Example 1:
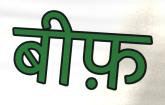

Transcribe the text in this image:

बीफ़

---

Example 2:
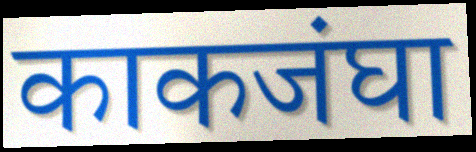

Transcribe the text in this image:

काकजंघा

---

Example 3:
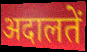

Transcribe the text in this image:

अदालतें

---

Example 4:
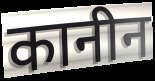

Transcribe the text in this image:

कानीन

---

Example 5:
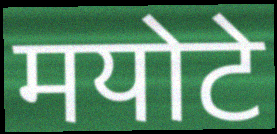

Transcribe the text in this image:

मयोटे